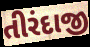
તીરંદાજી